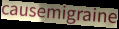
causemigraine